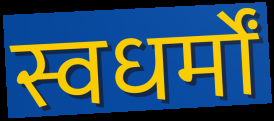
स्वधर्मों